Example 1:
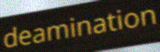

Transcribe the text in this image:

deamination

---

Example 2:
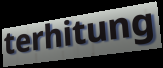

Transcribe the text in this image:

terhitung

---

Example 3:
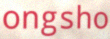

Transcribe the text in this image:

ongsho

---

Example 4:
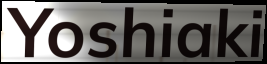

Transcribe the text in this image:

Yoshiaki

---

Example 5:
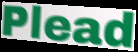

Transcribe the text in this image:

Plead